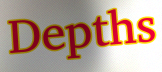
Depths